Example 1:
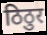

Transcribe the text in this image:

ठिठुर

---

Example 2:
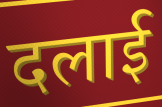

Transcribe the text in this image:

दलाई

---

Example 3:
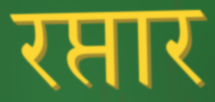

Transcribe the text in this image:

रप्तार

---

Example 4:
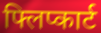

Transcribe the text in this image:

फ्लिप्कार्ट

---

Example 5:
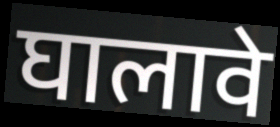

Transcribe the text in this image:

घालावे